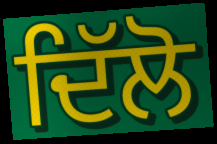
ਦਿੱਲੋ